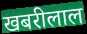
खबरीलाल